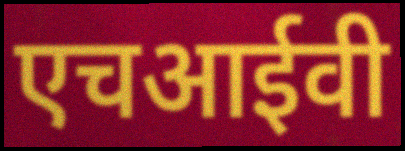
एचआईवी